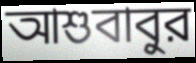
আশুবাবুর